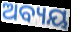
ଅବ୍ୟୟ